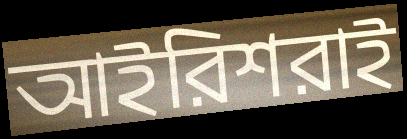
আইরিশরাই